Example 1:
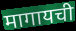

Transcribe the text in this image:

मागायची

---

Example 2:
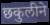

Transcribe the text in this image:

छकुलीने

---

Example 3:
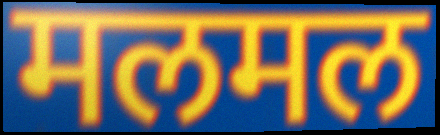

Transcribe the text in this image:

मलमल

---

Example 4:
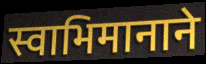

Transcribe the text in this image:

स्वाभिमानाने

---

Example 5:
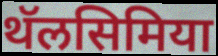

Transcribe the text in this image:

थॅलसिमिया